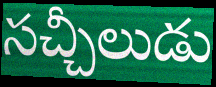
సచ్చీలుడు